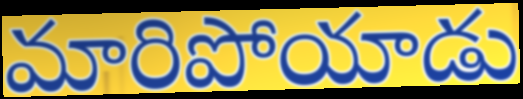
మారిపోయాడు